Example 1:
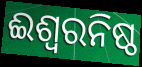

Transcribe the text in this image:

ଈଶ୍ୱରନିଷ୍ଠ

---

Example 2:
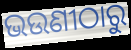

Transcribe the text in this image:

ଭଉଣୀଠାରୁ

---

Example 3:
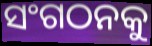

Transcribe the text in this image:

ସଂଗଠନକୁ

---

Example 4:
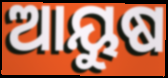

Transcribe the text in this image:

ଆୟୁଷ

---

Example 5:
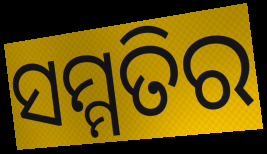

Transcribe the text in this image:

ସମ୍ମତିର